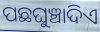
ପଛଘୁଞ୍ଚାଦିଏ